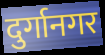
दुर्गानगर